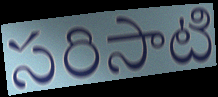
సరిసాటి